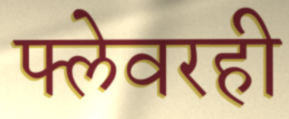
फ्लेवरही